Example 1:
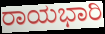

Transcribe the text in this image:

ರಾಯಭಾರಿ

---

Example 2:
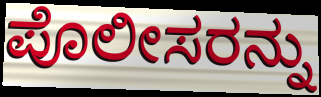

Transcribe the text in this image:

ಪೊಲೀಸರನ್ನು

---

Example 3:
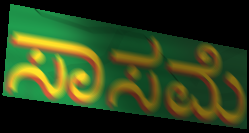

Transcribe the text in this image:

ಸಾಸಮೆ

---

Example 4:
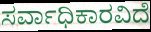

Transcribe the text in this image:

ಸರ್ವಾಧಿಕಾರವಿದೆ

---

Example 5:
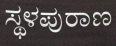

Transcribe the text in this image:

ಸ್ಥಳಪುರಾಣ